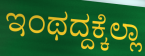
ಇಂಥದ್ದಕ್ಕೆಲ್ಲಾ